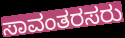
ಸಾವಂತರಸರು